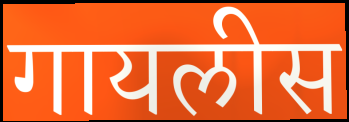
गायलीस